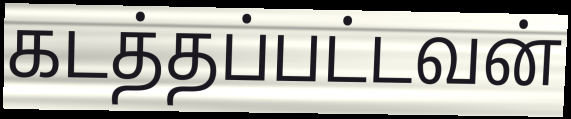
கடத்தப்பட்டவன்